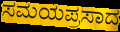
ಸಮಯಪ್ರಸಾದ